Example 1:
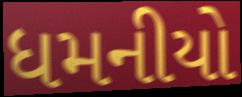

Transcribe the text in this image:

ધમનીયો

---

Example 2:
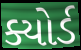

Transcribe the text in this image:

ક્યોર્ડ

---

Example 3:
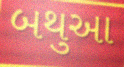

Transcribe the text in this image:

બથુઆ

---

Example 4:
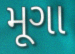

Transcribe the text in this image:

મૂગા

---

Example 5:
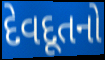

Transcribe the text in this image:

દેવદૂતનો